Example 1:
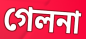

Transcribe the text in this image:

গেলনা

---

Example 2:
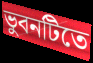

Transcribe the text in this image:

ভুবনটিতে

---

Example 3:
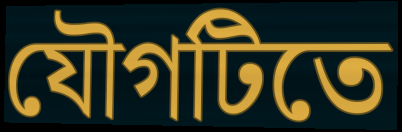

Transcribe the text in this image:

যৌগটিতে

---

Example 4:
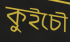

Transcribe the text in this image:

কুইচৌ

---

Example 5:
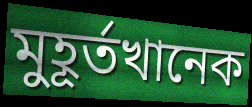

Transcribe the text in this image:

মুহূর্তখানেক